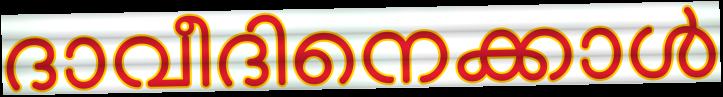
ദാവീദിനെക്കാൾ